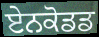
ਏਨਕੋਡਡ